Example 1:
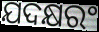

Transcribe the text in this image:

ଯଦକ୍ଷରଂ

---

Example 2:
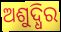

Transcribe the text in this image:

ଅଶୁଦ୍ଧିର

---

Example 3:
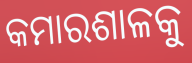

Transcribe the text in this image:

କମାରଶାଳକୁ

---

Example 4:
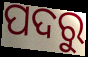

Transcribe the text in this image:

ପଦରୁ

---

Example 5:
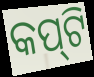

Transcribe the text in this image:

କପ୍‌ଟି